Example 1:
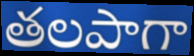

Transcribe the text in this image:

తలపాగా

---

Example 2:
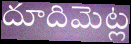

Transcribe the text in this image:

దూదిమెట్ల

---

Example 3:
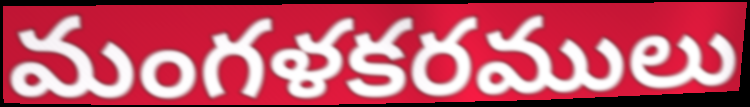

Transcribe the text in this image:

మంగళకరములు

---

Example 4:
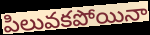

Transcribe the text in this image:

పిలువకపోయినా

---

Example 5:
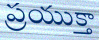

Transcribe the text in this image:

ప్రయుక్తా